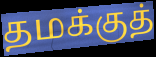
தமக்குத்